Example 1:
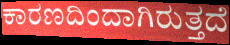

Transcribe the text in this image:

ಕಾರಣದಿಂದಾಗಿರುತ್ತದೆ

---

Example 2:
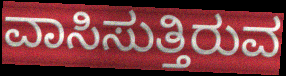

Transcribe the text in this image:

ವಾಸಿಸುತ್ತಿರುವ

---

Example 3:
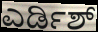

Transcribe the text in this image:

ಎರ್ಡಿಶ್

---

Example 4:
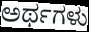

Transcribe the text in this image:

ಅರ್ಥಗಳು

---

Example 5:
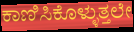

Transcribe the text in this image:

ಕಾಣಿಸಿಕೊಳ್ಳುತ್ತಲೇ